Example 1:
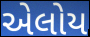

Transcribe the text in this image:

એલોય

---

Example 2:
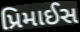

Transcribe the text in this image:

પ્રિમાઈસ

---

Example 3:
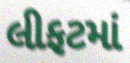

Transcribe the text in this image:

લીફટમાં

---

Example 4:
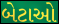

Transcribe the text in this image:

બેટાઓ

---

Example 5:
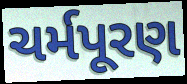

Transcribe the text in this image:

ચર્મપૂરણ